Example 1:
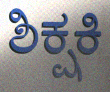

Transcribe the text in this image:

ಶಿಕ್ಷಕಿ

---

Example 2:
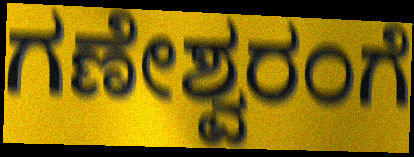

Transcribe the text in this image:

ಗಣೇಶ್ವರಂಗೆ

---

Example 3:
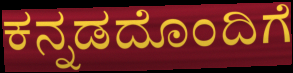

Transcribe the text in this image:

ಕನ್ನಡದೊಂದಿಗೆ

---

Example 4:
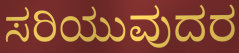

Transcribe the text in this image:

ಸರಿಯುವುದರ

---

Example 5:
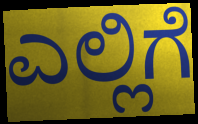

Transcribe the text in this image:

ಎಲ್ಲಿಗೆ